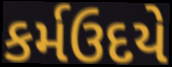
કર્મઉદયે